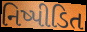
નિષ્પીડિત